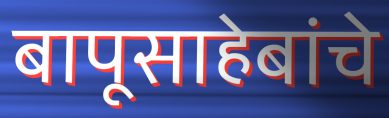
बापूसाहेबांचे